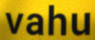
vahu